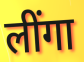
लींगा